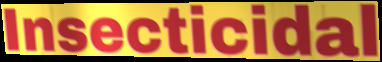
Insecticidal